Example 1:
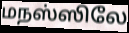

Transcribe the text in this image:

மநஸ்ஸிலே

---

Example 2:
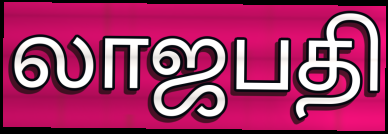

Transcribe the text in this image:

லாஜபதி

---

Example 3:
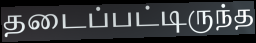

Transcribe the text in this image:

தடைப்பட்டிருந்த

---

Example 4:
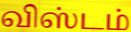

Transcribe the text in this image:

விஸ்டம்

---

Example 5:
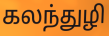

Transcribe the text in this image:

கலந்துழி